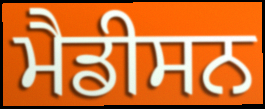
ਮੈਡੀਸਨ